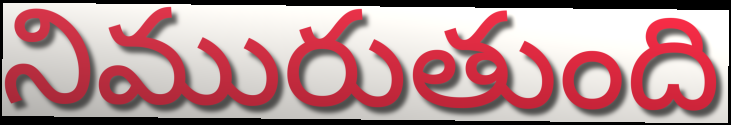
నిమురుతుంది